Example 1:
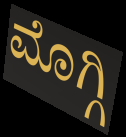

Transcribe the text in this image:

ಮೊಗ್ಗಿ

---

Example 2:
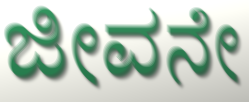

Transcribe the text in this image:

ಜೀವನೇ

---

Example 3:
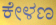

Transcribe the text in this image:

ಕೇಳಣ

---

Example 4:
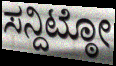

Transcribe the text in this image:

ಸನ್ದಿಟ್ಠೋ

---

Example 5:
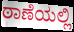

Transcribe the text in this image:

ಠಾಣೆಯಲ್ಲಿ